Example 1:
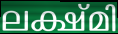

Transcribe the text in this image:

ലക്ഷ്‌മി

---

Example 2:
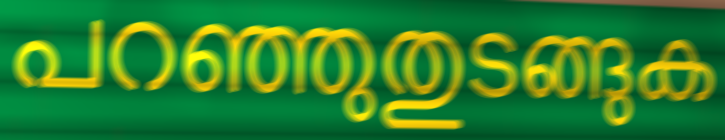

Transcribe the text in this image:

പറഞ്ഞുതുടങ്ങുക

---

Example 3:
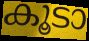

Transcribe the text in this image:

കൂടാ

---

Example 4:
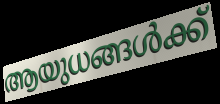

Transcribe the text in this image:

ആയുധങ്ങൾക്ക്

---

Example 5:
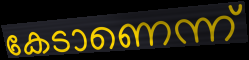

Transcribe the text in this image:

കേടാണെന്ന്